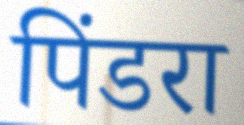
पिंडरा